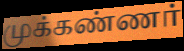
முக்கண்ணர்